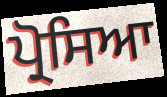
ਪ੍ਰੋਸਿਆ